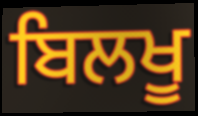
ਬਿਲਖੂ